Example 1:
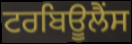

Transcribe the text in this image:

ਟਰਬਿਊਲੈਂਸ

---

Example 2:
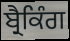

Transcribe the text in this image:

ਬ੍ਰੈਕਿੰਗ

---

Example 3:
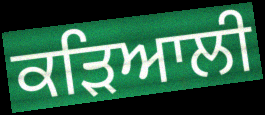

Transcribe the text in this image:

ਕੜਿਆਲੀ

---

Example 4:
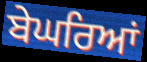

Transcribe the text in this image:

ਬੇਘਰਿਆਂ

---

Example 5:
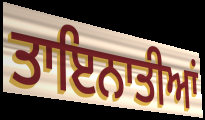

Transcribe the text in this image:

ਤਾਇਨਾਤੀਆਂ